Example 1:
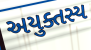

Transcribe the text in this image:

અયુક્તસ્ય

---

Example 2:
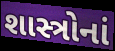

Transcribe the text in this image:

શાસ્ત્રોનાં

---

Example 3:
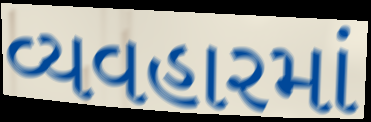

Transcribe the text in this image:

વ્યવહારમાં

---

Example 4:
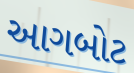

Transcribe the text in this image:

આગબોટ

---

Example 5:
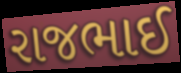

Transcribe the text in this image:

રાજભાઈ